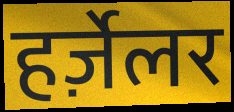
हर्ज़ेलर